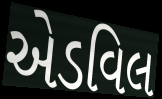
એડવિલ